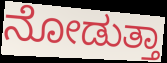
ನೋಡುತ್ತಾ